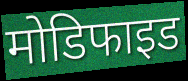
मोडिफाइड